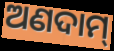
ଅଣଦାମ୍